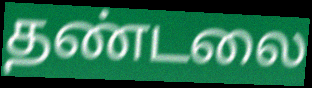
தண்டலை